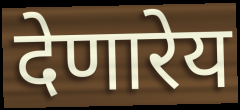
देणारेय